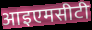
आइएमसीटी